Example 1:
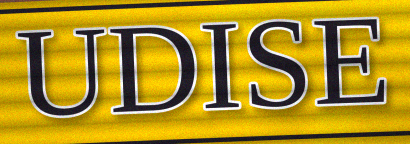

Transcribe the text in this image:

UDISE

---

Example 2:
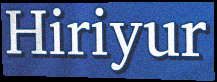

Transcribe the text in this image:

Hiriyur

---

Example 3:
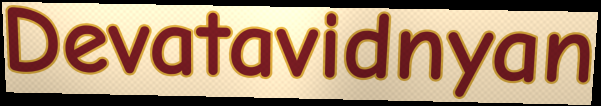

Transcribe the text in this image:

Devatavidnyan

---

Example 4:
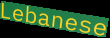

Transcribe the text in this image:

Lebanese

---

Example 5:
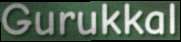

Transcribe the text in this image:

Gurukkal